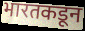
भारतकडून